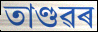
তাণ্ডৱৰ